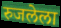
रुजलेला